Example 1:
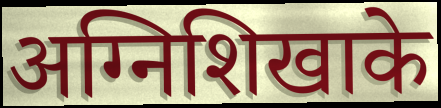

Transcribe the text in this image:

अग्निशिखाके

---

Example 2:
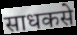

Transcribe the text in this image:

साधकसे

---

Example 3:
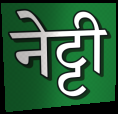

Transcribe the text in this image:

नेट्टी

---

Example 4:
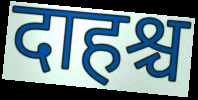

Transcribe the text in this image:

दाहश्च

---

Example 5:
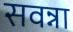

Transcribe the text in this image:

सवन्ना